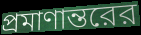
প্রমাণান্তরের